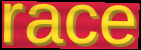
race